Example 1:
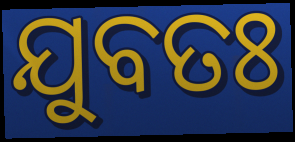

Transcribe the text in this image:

ଯୁବତଃ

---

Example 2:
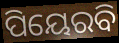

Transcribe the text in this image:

ପିୟେରବି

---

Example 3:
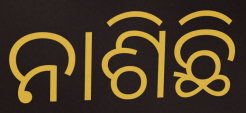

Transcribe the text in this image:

ନାଶିଛି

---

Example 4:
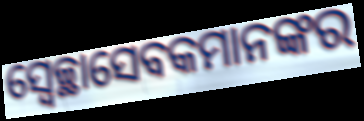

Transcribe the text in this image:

ସ୍ୱେଚ୍ଛାସେବକମାନଙ୍କର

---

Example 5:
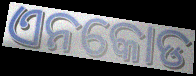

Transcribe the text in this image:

ଏନକୋଡ